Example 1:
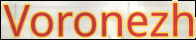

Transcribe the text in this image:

Voronezh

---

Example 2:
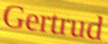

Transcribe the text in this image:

Gertrud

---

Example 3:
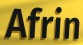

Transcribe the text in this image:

Afrin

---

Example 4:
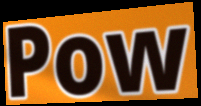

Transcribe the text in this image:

Pow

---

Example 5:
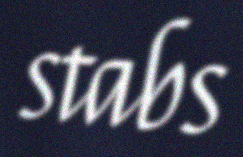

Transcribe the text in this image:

stabs